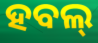
ହବଲ୍